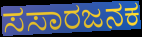
ಸಸಾರಜನಕ